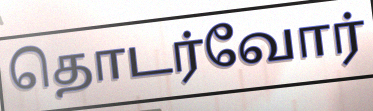
தொடர்வோர்